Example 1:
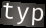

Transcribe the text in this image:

typ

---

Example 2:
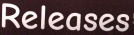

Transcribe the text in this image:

Releases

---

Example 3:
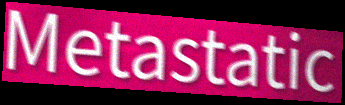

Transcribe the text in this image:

Metastatic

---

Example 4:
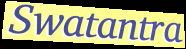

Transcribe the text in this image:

Swatantra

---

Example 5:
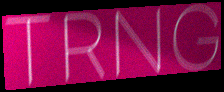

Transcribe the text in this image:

TRNG